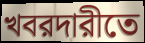
খবরদারীতে